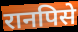
रानपिसे